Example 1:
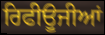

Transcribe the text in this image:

ਰਿਫੀਊਜੀਆਂ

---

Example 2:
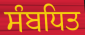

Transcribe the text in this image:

ਸੰਬਧਿਤ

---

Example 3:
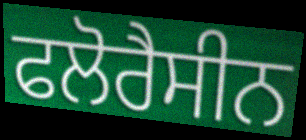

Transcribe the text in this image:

ਫਲੋਰੈਸੀਨ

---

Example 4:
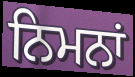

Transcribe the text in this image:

ਨਿਮਨਾਂ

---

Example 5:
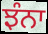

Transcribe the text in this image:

ਝੰਨਾ